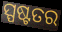
ସ୍ପଷ୍ଟତର